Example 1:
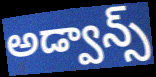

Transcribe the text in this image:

అడ్వాన్స్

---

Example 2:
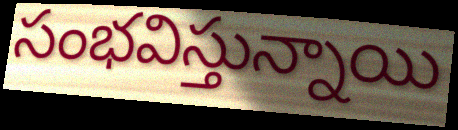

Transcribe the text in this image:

సంభవిస్తున్నాయి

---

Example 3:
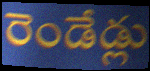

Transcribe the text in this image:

రెండేడ్లు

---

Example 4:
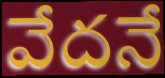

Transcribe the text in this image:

వేదనే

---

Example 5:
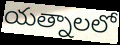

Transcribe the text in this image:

యత్నాలలో